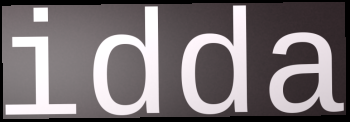
idda